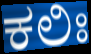
ಕಲಿಃ